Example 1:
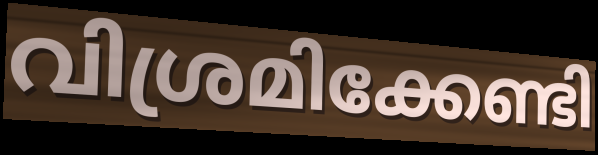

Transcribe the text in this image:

വിശ്രമിക്കേണ്ടി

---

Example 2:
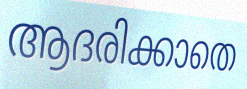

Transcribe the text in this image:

ആദരിക്കാതെ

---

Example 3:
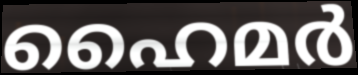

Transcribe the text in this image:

ഹൈമർ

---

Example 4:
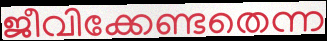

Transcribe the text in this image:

ജീവിക്കേണ്ടതെന്ന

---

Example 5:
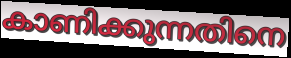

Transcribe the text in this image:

കാണിക്കുന്നതിനെ